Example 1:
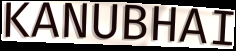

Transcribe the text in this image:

KANUBHAI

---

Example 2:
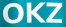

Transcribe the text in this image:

OKZ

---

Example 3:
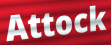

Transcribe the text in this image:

Attock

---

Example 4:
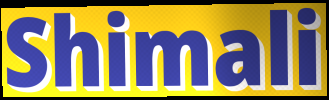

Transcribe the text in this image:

Shimali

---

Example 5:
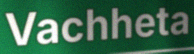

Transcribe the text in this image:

Vachheta